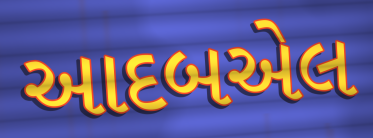
આદબએલ